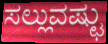
ಸಲ್ಲುವಷ್ಟು